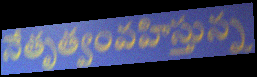
నేతృత్వంవహిస్తున్న